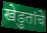
खेडुतांचे